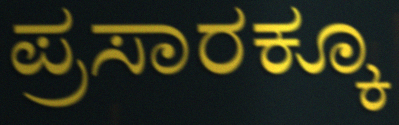
ಪ್ರಸಾರಕ್ಕೂ